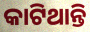
କାଟିଥାନ୍ତି